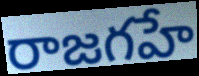
రాజగహే